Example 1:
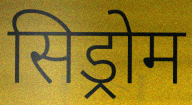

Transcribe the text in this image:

सिड्रोम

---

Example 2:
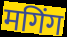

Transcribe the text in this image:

मगिंग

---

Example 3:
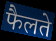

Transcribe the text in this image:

फैलते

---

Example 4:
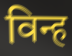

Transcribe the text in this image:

विन्ह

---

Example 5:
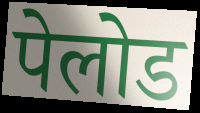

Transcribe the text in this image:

पेलोड